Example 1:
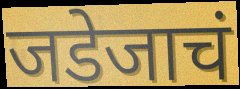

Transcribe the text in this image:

जडेजाचं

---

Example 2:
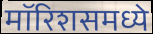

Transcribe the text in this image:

मॉरिशसमध्ये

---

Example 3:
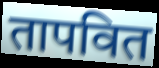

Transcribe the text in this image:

तापवित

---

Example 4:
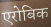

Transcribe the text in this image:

एरोबिक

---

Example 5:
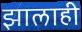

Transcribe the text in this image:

झालाही